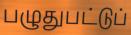
பழுதுபட்டுப்